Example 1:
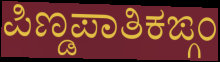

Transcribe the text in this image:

ಪಿಣ್ಡಪಾತಿಕಙ್ಗಂ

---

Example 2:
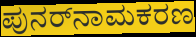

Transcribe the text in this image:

ಪುನರ್‌ನಾಮಕರಣ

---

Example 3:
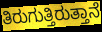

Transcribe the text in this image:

ತಿರುಗುತ್ತಿರುತ್ತಾನೆ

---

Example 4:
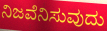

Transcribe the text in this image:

ನಿಜವೆನಿಸುವುದು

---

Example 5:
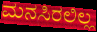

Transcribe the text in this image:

ಮನಸಿರಲಿಲ್ಲ